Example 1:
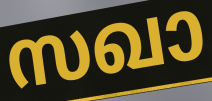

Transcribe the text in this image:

സഖാ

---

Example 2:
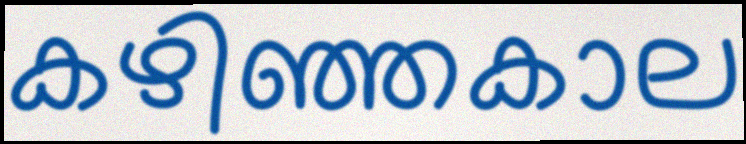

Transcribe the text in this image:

കഴിഞ്ഞകാല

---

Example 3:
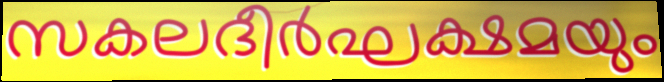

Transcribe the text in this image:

സകലദീർഘക്ഷമയും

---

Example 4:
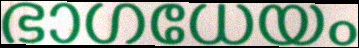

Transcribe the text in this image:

ഭാഗധേയം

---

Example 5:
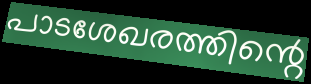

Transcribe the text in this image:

പാടശേഖരത്തിന്റെ